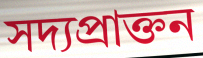
সদ্যপ্রাক্তন